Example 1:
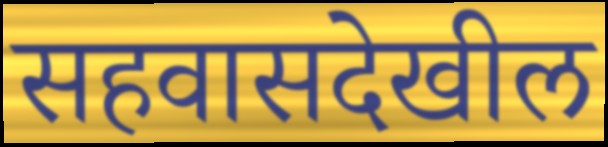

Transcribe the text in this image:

सहवासदेखील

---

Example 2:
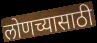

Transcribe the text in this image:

लोणच्यासाठी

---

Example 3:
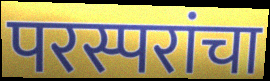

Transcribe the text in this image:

परस्परांचा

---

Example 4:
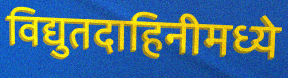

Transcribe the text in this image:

विद्युतदाहिनीमध्ये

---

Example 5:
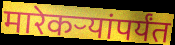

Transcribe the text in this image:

मारेकऱ्यांपर्यंत